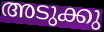
അടുക്കു